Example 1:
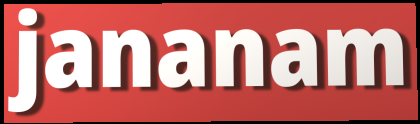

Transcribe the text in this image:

jananam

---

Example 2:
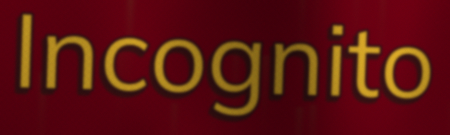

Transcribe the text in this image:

Incognito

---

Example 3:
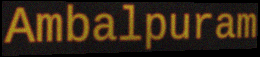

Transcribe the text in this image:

Ambalpuram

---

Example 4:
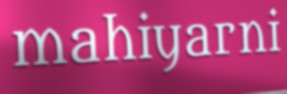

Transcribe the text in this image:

mahiyarni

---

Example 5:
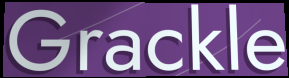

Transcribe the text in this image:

Grackle